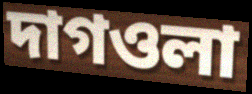
দাগওলা